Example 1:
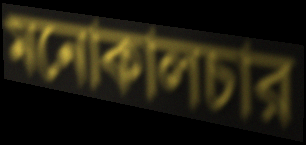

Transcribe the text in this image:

মনোকালচার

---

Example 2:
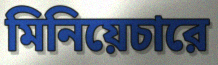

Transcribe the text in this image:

মিনিয়েচারে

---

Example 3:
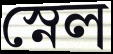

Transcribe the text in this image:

স্নেল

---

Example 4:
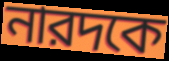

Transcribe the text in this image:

নারদকে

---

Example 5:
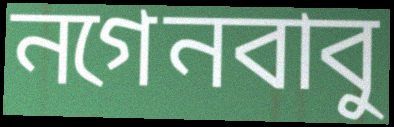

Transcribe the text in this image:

নগেনবাবু